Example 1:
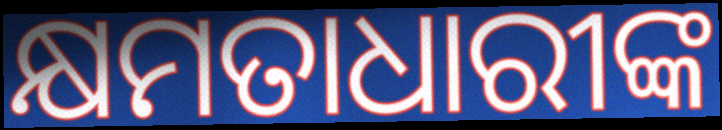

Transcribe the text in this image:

କ୍ଷମତାଧାରୀଙ୍କ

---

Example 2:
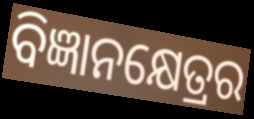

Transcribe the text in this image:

ବିଜ୍ଞାନକ୍ଷେତ୍ରର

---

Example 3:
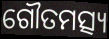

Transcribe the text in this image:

ଗୌତମତ୍ସ୍ୟ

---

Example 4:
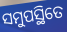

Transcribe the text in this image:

ସମୁପସ୍ଥିତେ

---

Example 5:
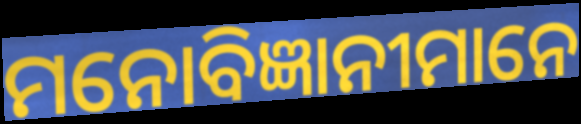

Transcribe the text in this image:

ମନୋବିଜ୍ଞାନୀମାନେ